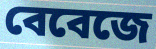
বেবেজে